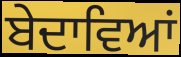
ਬੇਦਾਵਿਆਂ